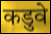
कडुवे